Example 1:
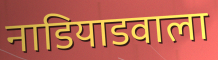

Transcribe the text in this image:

नाडियाडवाला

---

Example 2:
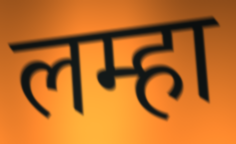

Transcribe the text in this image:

लम्हा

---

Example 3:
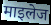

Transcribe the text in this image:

माइलेज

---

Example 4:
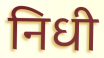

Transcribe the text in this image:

निधी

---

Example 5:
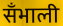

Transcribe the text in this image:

सँभाली